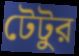
টেটুর